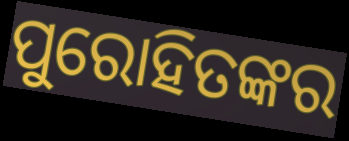
ପୁରୋହିତଙ୍କର